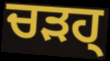
ਚੜਹ੍